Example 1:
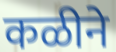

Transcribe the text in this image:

कळीने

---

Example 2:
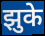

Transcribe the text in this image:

झुके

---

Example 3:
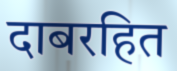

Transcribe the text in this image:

दाबरहित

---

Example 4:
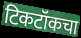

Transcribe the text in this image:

टिकटॉकचा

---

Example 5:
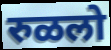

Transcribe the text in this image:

रुळलो